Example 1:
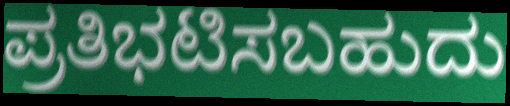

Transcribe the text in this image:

ಪ್ರತಿಭಟಿಸಬಹುದು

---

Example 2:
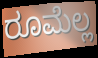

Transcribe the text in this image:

ರೂಮೆಲ್ಲ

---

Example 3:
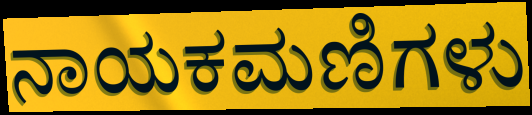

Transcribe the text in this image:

ನಾಯಕಮಣಿಗಳು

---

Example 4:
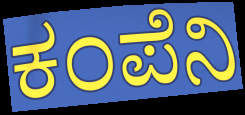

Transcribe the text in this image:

ಕಂಪೆನಿ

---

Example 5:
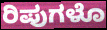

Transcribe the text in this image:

ರಿಪುಗಳೊ